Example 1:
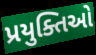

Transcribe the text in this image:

પ્રયુક્તિઓ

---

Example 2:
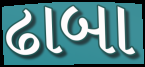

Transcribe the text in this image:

ઢાબા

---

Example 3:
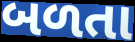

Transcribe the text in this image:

બળતા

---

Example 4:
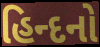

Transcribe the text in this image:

હિન્દનો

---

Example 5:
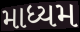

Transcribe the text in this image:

માધ્યમ